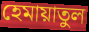
হেমায়াতুল